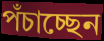
পঁচাচ্ছেন